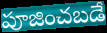
పూజించబడే